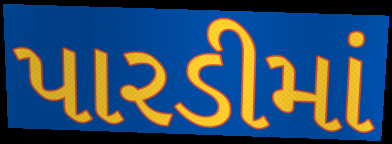
પારડીમાં